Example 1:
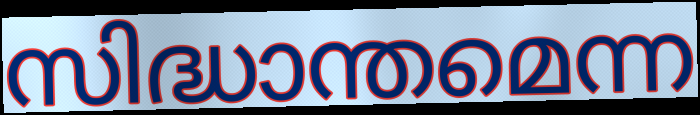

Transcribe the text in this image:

സിദ്ധാന്തമെന്ന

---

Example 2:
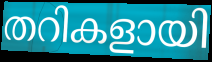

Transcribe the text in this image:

തറികളായി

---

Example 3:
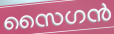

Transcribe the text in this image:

സൈഗൻ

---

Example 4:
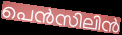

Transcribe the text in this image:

പെൻസിലിൻ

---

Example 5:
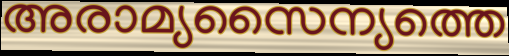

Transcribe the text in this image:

അരാമ്യസൈന്യത്തെ